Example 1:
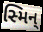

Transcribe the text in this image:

સ્મિન્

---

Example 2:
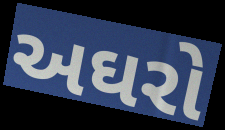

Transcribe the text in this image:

અઘરો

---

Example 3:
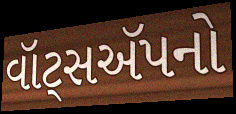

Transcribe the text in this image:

વૉટ્સઍપનો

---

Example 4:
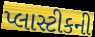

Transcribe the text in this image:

પ્લાસ્ટીકની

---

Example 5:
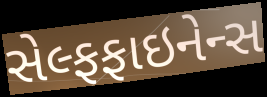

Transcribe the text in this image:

સેલ્ફફાઇનેન્સ